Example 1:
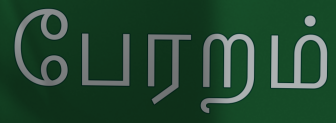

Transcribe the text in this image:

பேரறம்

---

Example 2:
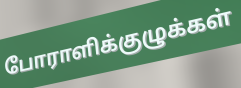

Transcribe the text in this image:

போராளிக்குழுக்கள்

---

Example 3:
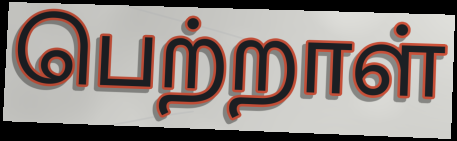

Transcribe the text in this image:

பெற்றாள்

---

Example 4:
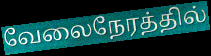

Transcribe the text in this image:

வேலைநேரத்தில்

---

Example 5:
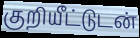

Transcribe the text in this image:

குறியீட்டுடன்